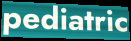
pediatric